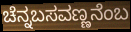
ಚೆನ್ನಬಸವಣ್ಣನೆಂಬ